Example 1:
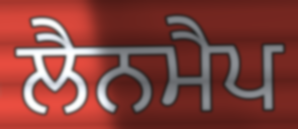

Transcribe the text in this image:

ਲੈਨਮੈਪ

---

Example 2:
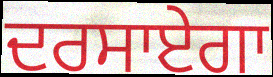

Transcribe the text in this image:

ਦਰਸਾਏਗਾ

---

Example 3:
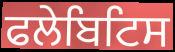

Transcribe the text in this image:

ਫਲੇਬਿਟਿਸ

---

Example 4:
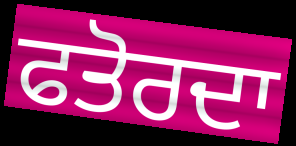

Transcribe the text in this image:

ਫਤੋਰਦਾ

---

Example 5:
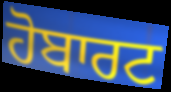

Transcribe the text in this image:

ਹੋਬਾਰਟ